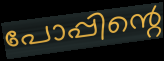
പോപ്പിന്റെ